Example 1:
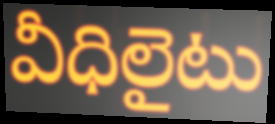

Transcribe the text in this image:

వీధిలైటు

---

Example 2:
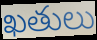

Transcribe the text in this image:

ఖతులు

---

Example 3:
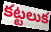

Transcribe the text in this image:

కట్టలుక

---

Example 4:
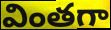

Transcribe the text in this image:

వింతగా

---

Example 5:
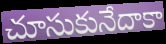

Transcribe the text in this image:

చూసుకునేదాకా